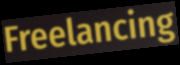
Freelancing